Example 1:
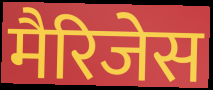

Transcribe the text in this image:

मैरिजेस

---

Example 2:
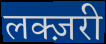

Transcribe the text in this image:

लक्ज़री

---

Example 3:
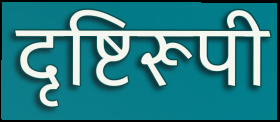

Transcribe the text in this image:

दृष्टिरूपी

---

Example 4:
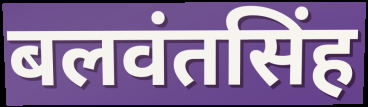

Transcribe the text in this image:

बलवंतसिंह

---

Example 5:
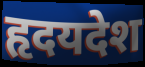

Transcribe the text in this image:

हृदयदेश